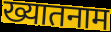
ख्यातनाम